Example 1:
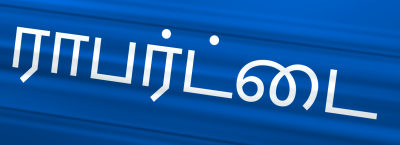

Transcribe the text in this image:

ராபர்ட்டை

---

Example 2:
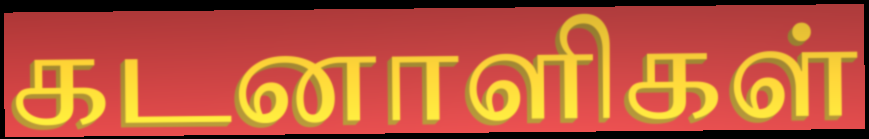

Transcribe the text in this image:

கடனாளிகள்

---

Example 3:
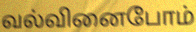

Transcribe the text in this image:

வல்வினைபோம்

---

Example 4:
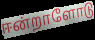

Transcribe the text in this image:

ஈன்றாளோடு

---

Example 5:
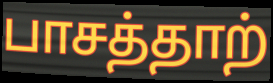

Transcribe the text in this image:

பாசத்தாற்